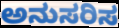
ಅನುಸರಿಸ